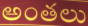
అంతలు